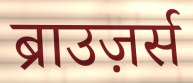
ब्राउज़र्स